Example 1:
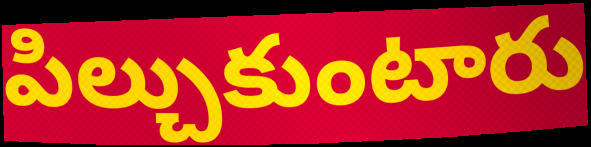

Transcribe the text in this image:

పిల్చుకుంటారు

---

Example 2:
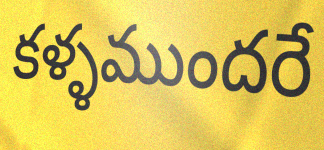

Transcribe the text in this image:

కళ్ళముందరే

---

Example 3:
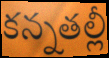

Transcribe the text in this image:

కన్నతల్లీ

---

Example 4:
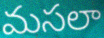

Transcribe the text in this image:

మసలా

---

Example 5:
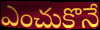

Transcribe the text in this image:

ఎంచుకొనే